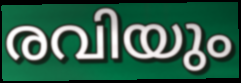
രവിയും